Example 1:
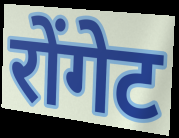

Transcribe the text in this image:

रोंगेट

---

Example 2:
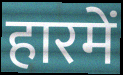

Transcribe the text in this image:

हारमें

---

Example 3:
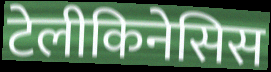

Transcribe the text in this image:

टेलीकिनेसिस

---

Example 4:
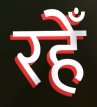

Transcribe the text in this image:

रहेँ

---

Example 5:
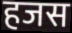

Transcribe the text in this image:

हजस